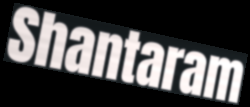
Shantaram